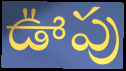
ఊపు